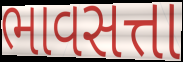
ભાવસત્તા